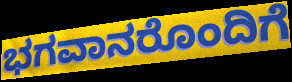
ಭಗವಾನರೊಂದಿಗೆ